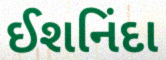
ઈશનિંદા